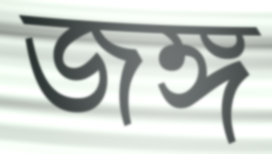
জঙ্গ